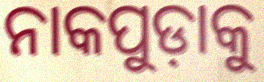
ନାକପୁଡ଼ାକୁ